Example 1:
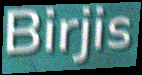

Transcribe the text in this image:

Birjis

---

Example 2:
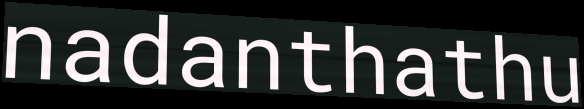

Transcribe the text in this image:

nadanthathu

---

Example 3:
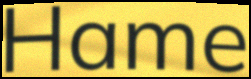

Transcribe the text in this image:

Hame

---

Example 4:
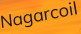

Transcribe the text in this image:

Nagarcoil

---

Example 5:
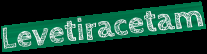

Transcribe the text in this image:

Levetiracetam